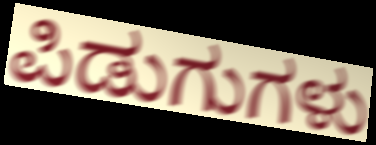
ಪಿಡುಗುಗಳು